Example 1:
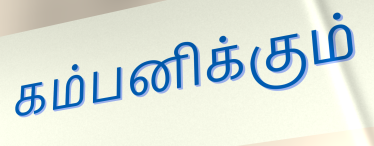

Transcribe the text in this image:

கம்பனிக்கும்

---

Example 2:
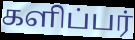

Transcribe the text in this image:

களிப்பர்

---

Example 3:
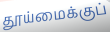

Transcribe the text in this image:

தூய்மைக்குப்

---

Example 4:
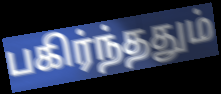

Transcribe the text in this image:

பகிர்ந்ததும்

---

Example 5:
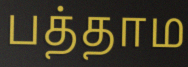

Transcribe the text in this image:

பத்தாம